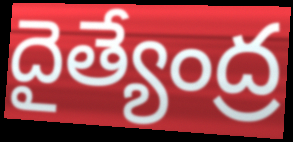
దైత్యేంద్ర